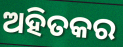
ଅହିତକର